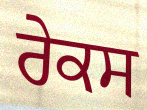
ਰੇਕਸ